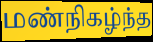
மண்நிகழ்ந்த